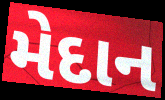
મેદાન